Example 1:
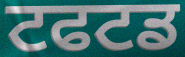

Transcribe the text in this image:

ਟਫਟਡ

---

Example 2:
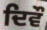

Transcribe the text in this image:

ਦਿਵੌ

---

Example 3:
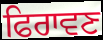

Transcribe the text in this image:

ਫਿਰਾਵਣ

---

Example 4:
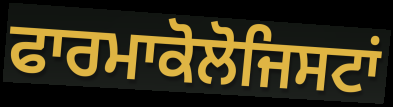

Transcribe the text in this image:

ਫਾਰਮਾਕੋਲੋਜਿਸਟਾਂ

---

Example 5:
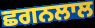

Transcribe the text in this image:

ਛਗਨਲਾਲ